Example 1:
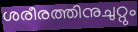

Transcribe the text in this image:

ശരീരത്തിനുചുറ്റും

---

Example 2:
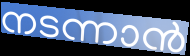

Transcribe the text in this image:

നടന്നാൻ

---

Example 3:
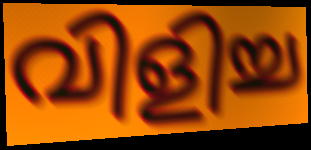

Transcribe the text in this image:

വിളിച്ച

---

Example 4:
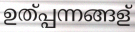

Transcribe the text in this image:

ഉത്പ്പന്നങ്ങള്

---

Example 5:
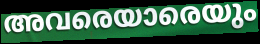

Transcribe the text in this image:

അവരെയാരെയും